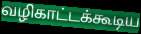
வழிகாட்டக்கூடிய